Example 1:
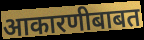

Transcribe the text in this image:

आकारणीबाबत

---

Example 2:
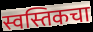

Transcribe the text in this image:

स्वस्तिकचा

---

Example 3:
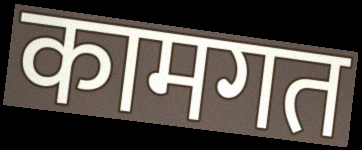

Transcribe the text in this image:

कामगत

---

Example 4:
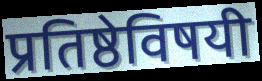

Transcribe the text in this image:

प्रतिष्ठेविषयी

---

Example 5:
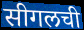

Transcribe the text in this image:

सीगलची